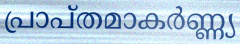
പ്രാപ്തമാകർണ്ണ്യ